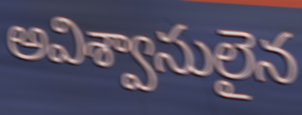
అవిశ్వాసులైన